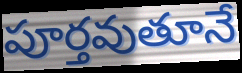
పూర్తవుతూనే